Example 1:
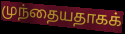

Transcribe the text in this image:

முந்தையதாகக்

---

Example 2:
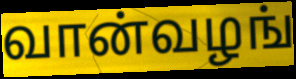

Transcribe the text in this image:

வான்வழங்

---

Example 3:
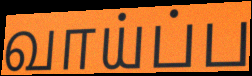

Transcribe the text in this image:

வாய்ப்ப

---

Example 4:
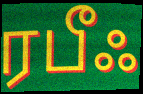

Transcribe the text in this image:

ரபீஃ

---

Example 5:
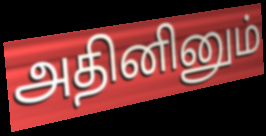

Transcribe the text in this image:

அதினினும்